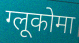
ग्लूकोमा